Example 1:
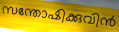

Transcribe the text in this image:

സന്തോഷിക്കുവിൻ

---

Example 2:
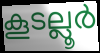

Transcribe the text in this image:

കൂടല്ലൂർ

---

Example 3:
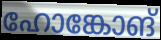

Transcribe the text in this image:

ഹോങ്കോങ്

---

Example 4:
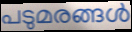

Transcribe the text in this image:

പടുമരങ്ങൾ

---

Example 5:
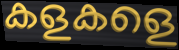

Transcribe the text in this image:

കളകളെ